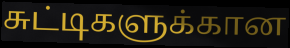
சுட்டிகளுக்கான